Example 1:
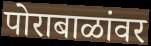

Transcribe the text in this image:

पोराबाळांवर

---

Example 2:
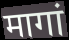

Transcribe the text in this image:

मागां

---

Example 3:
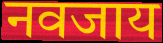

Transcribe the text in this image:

नवजाय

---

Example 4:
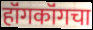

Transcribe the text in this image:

हॉंगकॉंगचा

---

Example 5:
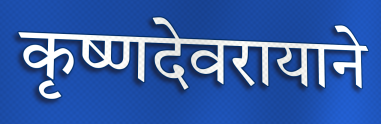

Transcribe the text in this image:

कृष्णदेवरायाने